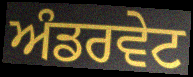
ਅੰਡਰਵੇਟ